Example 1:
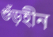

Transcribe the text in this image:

শুঁড়হীন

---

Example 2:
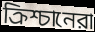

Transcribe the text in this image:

ক্রিশ্চানেরা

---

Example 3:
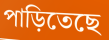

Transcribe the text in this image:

পাড়িতেছে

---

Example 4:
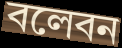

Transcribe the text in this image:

বলেবন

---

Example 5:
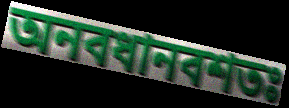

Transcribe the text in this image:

অনবধানবশতঃ